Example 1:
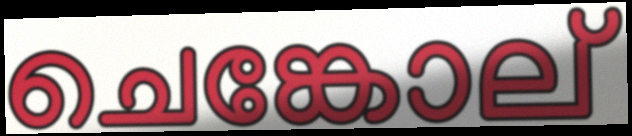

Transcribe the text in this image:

ചെങ്കോല്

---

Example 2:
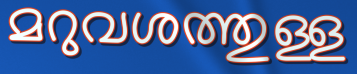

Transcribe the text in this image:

മറുവശത്തുള്ള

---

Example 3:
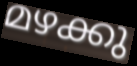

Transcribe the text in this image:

മഴക്കു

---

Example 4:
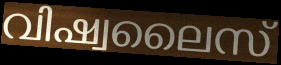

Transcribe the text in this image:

വിഷ്വലൈസ്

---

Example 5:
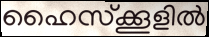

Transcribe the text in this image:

ഹൈസ്ക്കൂളിൽ